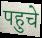
पहुचे